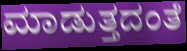
ಮಾಡುತ್ತದಂತೆ